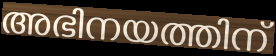
അഭിനയത്തിന്